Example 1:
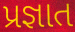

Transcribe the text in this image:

પ્રજ્ઞાત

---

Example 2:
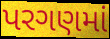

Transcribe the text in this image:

પરગણમાં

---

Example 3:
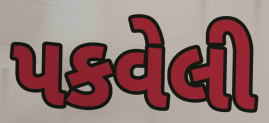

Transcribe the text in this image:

પકવેલી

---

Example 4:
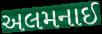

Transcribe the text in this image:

અલમનાઈ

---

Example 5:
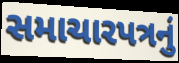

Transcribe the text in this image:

સમાચારપત્રનું